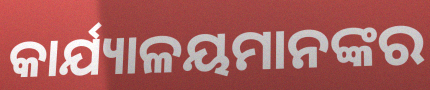
କାର୍ଯ୍ୟାଳୟମାନଙ୍କର